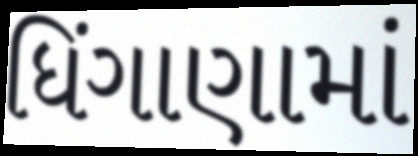
ધિંગાણામાં